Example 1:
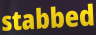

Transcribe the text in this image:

stabbed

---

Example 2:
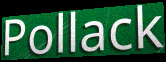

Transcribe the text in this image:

Pollack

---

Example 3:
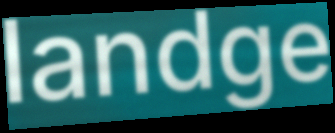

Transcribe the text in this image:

landge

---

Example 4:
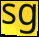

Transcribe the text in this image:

sg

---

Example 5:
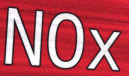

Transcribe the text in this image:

NOx